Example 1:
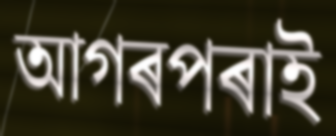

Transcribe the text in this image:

আগৰপৰাই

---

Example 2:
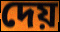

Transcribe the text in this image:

দেয়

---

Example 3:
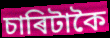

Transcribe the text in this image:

চাৰিটাকৈ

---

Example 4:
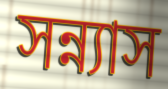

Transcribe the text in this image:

সন্ন্যাস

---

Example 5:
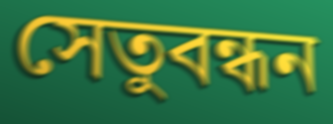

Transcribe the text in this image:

সেতুবন্ধন